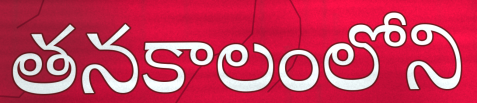
తనకాలంలోని